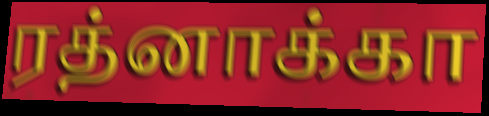
ரத்னாக்கா